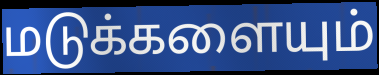
மடுக்களையும்